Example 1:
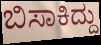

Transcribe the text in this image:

ಬಿಸಾಕಿದ್ದು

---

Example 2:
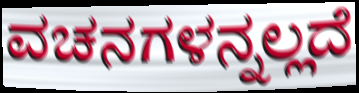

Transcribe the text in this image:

ವಚನಗಳನ್ನಲ್ಲದೆ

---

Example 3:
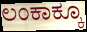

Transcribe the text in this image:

ಲಂಕಾಕ್ಕೂ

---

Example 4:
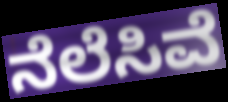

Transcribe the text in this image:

ನೆಲೆಸಿವೆ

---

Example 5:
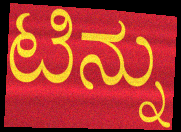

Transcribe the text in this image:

ಟಿನ್ನು